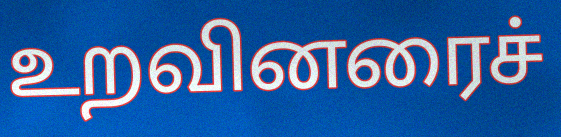
உறவினரைச்